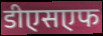
डीएसएफ